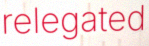
relegated